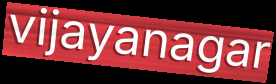
vijayanagar